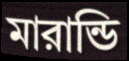
মারান্ডি